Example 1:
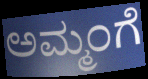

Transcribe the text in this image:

ಅಮ್ಮಂಗೆ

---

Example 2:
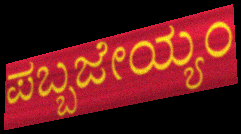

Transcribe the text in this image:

ಪಬ್ಬಜೇಯ್ಯಂ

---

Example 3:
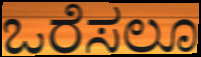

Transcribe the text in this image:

ಒರೆಸಲೂ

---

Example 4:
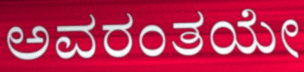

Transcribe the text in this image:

ಅವರಂತಯೇ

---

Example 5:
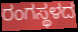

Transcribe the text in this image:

ರಂಗಸ್ಥಳದ